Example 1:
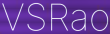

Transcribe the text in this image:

VSRao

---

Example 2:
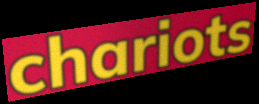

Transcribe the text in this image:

chariots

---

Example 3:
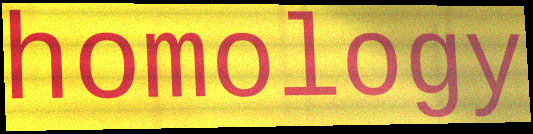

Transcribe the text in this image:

homology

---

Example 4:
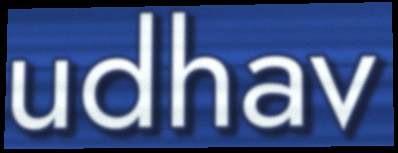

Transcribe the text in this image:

udhav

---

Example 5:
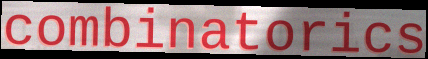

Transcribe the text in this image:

combinatorics